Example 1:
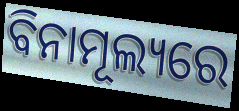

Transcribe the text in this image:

ବିନାମୂଲ୍ୟରେ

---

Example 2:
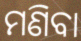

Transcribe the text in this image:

ମଣିବା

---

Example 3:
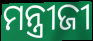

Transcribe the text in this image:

ମନ୍ତ୍ରୀଜୀ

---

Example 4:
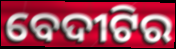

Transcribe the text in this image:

ବେଦୀଟିର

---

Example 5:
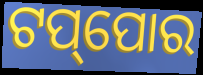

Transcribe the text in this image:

ଟପ୍‌ପୋର